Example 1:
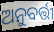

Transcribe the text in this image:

ଅନୁବର୍ତ୍ତୀ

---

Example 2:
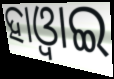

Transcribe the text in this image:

ହାଓ୍ୱାଇ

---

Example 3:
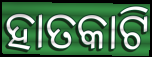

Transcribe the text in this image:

ହାତକାଟି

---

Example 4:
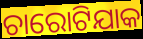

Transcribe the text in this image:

ଚାରୋଟିଯାକ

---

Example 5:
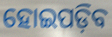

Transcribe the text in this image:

ହୋଇପଡ଼ିବ